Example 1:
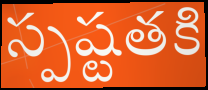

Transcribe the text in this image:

స్పష్టతకి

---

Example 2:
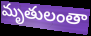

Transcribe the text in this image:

మృతులంతా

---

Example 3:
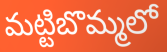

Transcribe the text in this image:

మట్టిబొమ్మలో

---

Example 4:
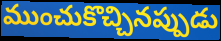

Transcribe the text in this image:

ముంచుకొచ్చినప్పుడు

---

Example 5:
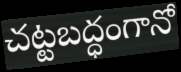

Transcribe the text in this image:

చట్టబద్ధంగానో